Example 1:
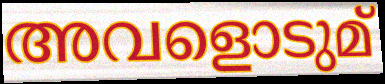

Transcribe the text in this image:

അവളൊടുമ്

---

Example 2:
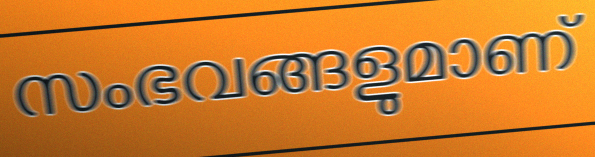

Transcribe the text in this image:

സംഭവങ്ങളുമാണ്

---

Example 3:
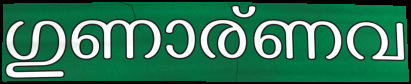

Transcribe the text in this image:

ഗുണാര്ണവ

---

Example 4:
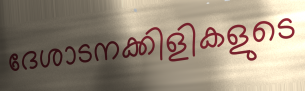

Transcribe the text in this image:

ദേശാടനക്കിളികളുടെ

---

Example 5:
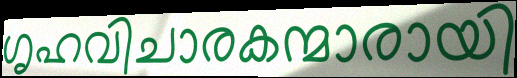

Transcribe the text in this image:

ഗൃഹവിചാരകന്മാരായി